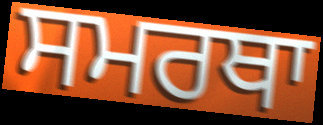
ਸਮਰਥਾ